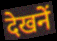
देखनें